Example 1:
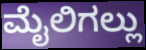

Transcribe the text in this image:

ಮೈಲಿಗಲ್ಲು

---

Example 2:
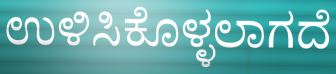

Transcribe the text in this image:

ಉಳಿಸಿಕೊಳ್ಳಲಾಗದೆ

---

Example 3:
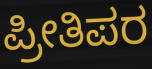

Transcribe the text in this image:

ಪ್ರೀತಿಪರ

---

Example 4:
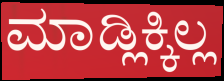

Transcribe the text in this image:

ಮಾಡ್ಲಿಕ್ಕಿಲ್ಲ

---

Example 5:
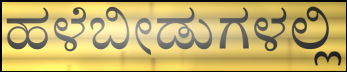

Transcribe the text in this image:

ಹಳೆಬೀಡುಗಳಲ್ಲಿ